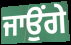
ਜਾਉਂਗੇ